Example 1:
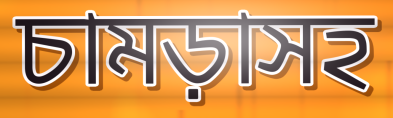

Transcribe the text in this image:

চামড়াসহ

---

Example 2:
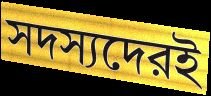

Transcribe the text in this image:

সদস্যদেরই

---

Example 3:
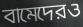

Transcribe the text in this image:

বামেদেরও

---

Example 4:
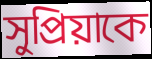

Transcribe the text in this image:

সুপ্রিয়াকে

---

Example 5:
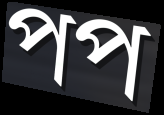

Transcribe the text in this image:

পপ